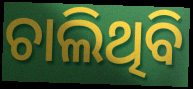
ଚାଲିଥିବି